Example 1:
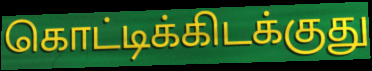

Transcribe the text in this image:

கொட்டிக்கிடக்குது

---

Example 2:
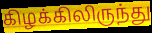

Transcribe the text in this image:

கிழக்கிலிருந்து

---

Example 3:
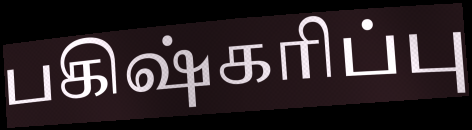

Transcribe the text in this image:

பகிஷ்கரிப்பு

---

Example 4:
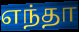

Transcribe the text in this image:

எந்தா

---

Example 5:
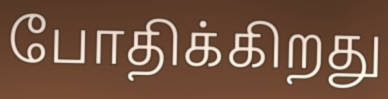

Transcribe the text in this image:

போதிக்கிறது